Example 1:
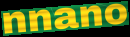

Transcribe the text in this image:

nnano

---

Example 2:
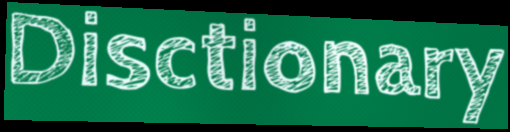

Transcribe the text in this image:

Disctionary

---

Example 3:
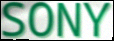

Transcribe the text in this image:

SONY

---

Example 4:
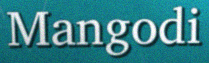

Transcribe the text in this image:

Mangodi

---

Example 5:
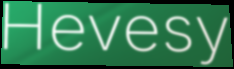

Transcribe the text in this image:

Hevesy